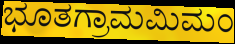
ಭೂತಗ್ರಾಮಮಿಮಂ